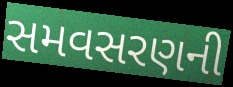
સમવસરણની